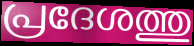
പ്രദേശത്തു